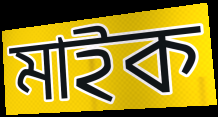
মাইক